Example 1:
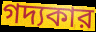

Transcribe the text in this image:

গদ্যকার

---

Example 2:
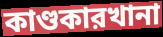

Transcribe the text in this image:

কাণ্ডকারখানা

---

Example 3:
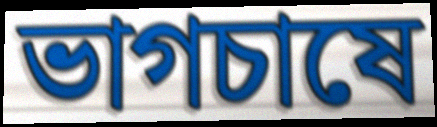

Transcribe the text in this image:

ভাগচাষে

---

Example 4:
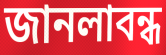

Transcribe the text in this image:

জানলাবন্ধ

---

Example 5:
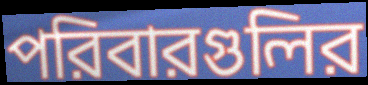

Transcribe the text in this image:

পরিবারগুলির